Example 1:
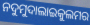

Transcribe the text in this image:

ନଦୁମୁଦାଲାଇକୁଲମର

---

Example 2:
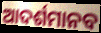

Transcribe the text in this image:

ଆଦର୍ଶମାନବ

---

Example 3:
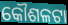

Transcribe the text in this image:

କୌଶଳଟା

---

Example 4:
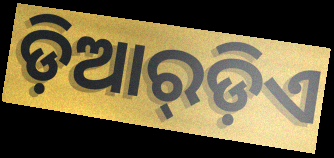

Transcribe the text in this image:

ଡ଼ିଆର୍‌ଡ଼ିଏ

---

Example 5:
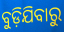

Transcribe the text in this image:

ବୁଡ଼ିଯିବାରୁ